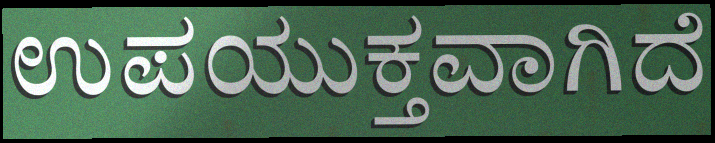
ಉಪಯುಕ್ತವಾಗಿದೆ